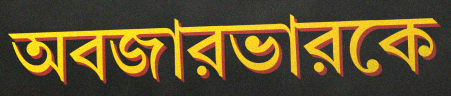
অবজারভারকে